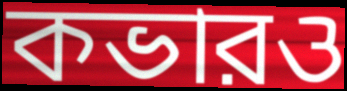
কভারও